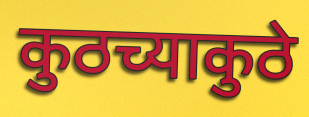
कुठच्याकुठे